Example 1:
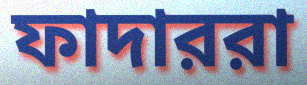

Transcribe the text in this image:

ফাদাররা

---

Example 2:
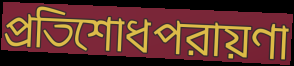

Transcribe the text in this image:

প্রতিশোধপরায়ণা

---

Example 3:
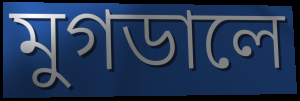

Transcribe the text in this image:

মুগডালে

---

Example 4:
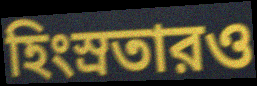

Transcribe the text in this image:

হিংস্রতারও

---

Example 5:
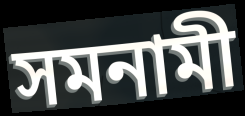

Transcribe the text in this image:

সমনামী